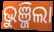
ଭୁଞ୍ଜିଲା